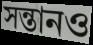
সন্তানও